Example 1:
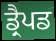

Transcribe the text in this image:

ਡ੍ਰੈਪਡ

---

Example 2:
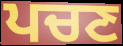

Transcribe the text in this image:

ਪਚਣ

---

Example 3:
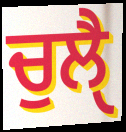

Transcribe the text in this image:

ਚੁਲੈੑ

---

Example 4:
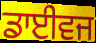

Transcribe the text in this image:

ਡਾਈਵਜ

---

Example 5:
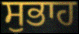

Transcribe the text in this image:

ਸੁਭਾਹ